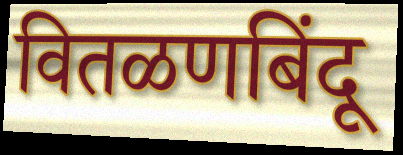
वितळणबिंदू